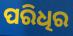
ପରିଧିର